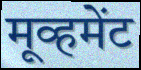
मूव्हमेंट